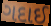
ગદાઈ